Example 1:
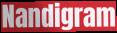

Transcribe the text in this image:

Nandigram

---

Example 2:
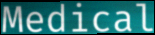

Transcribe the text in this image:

Medical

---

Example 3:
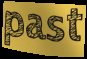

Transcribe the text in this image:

past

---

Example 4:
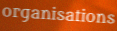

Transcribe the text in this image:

organisations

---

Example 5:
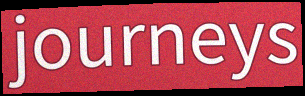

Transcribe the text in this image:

journeys